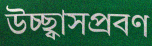
উচ্ছ্বাসপ্রবণ